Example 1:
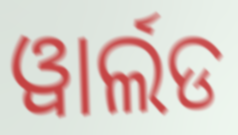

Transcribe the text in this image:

ୱାର୍ଲଡ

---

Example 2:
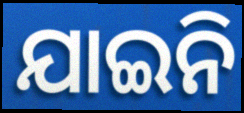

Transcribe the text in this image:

ଯାଇନି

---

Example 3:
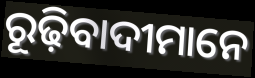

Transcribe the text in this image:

ରୂଢ଼ିବାଦୀମାନେ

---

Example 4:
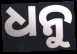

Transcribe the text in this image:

ଧନୁ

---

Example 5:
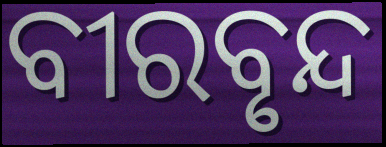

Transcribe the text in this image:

ବୀରବୃନ୍ଦ